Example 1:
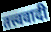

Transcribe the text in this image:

तत्त्ववादी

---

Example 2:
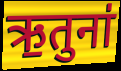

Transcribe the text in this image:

ऋ॒तुना॑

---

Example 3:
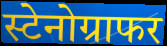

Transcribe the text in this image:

स्टेनोग्राफर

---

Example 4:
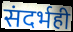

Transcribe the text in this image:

संदर्भही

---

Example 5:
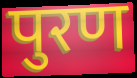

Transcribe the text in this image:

पुरण